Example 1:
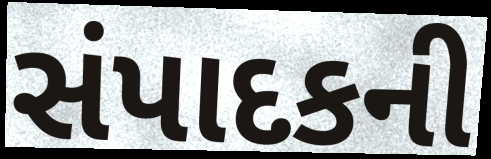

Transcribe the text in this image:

સંપાદકની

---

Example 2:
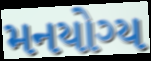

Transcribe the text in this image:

મનયોગ્ય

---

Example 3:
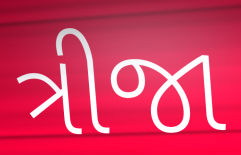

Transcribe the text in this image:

ત્રીજા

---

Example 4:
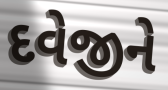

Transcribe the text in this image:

દવેજીને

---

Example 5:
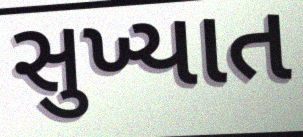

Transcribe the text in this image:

સુખ્યાત